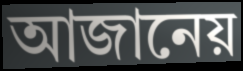
আজানেয়